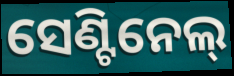
ସେଣ୍ଟିନେଲ୍